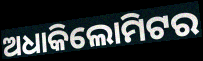
ଅଧାକିଲୋମିଟର